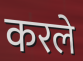
करले